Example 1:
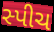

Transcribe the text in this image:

સ્પીચ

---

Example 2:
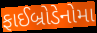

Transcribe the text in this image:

ફાઈબ્રોડેનોમા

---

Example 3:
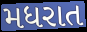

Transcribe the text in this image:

મધરાત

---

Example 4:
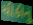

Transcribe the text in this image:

ચીકીનું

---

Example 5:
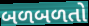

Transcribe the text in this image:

બળબળતો